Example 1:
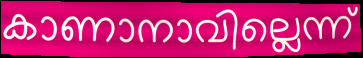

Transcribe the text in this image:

കാണാനാവില്ലെന്ന്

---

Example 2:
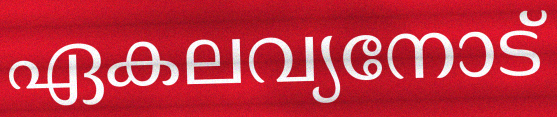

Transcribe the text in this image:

ഏകലവ്യനോട്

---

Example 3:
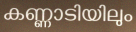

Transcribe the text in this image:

കണ്ണാടിയിലും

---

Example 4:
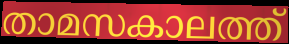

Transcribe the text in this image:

താമസകാലത്ത്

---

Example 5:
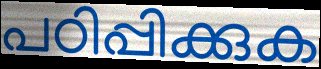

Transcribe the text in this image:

പഠിപ്പിക്കുക